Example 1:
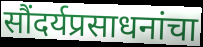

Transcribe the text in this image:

सौंदर्यप्रसाधनांचा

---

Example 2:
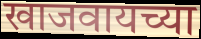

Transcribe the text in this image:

खाजवायच्या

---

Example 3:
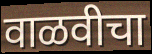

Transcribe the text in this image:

वाळवीचा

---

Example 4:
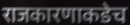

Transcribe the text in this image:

राजकारणाकडेच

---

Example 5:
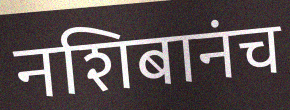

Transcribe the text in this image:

नशिबानंच